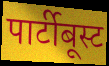
पार्टीबूस्ट